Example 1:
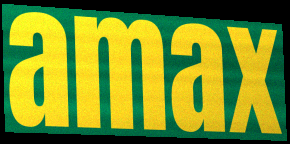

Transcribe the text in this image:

amax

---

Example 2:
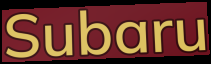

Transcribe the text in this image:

Subaru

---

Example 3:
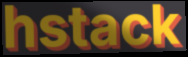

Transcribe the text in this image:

hstack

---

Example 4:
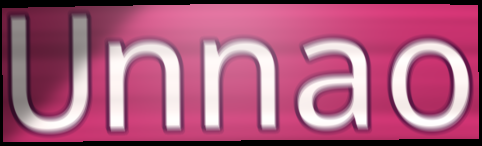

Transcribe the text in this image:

Unnao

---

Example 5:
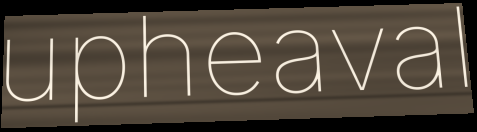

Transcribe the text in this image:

upheaval